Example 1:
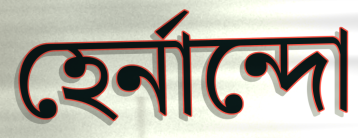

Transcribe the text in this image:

হের্নান্দো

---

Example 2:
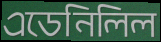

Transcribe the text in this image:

এডেনিলিল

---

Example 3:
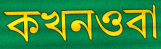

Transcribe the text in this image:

কখনওবা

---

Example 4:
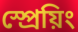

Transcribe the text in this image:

স্প্রেয়িং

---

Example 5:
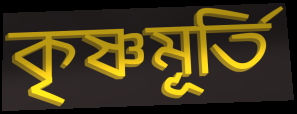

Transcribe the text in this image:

কৃষ্ণমূর্তি